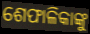
ଶେଫାଳିକାଙ୍କୁ